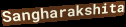
Sangharakshita